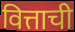
वित्ताची